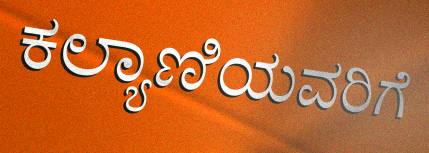
ಕಲ್ಯಾಣಿಯವರಿಗೆ